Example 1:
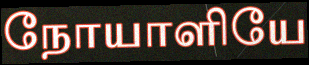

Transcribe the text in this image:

நோயாளியே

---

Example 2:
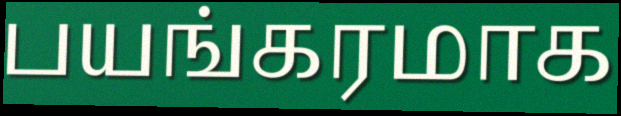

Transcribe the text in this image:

பயங்கரமாக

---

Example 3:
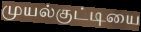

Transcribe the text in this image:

முயல்குட்டியை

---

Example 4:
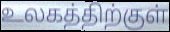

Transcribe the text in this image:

உலகத்திற்குள்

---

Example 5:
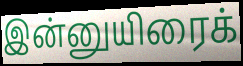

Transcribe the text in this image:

இன்னுயிரைக்